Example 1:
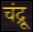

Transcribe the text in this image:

चंद्रू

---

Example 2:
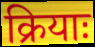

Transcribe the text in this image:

क्रियाः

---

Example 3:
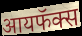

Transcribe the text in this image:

आयफॅक्स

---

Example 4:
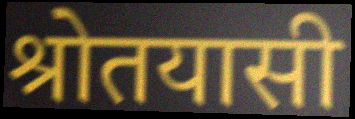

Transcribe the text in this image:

श्रोतयासी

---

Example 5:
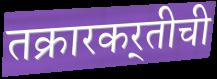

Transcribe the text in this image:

तक्रारकर्तीची